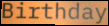
Birthday